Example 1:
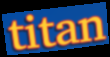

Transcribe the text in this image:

titan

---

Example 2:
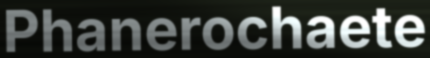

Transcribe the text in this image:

Phanerochaete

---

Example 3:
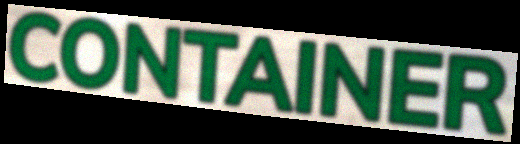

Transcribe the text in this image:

CONTAINER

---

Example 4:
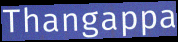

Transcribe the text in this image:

Thangappa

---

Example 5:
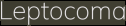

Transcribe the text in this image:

Leptocoma